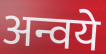
अन्‍वये